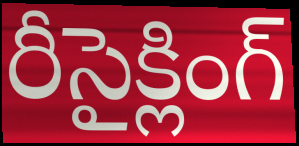
రీసైక్లింగ్